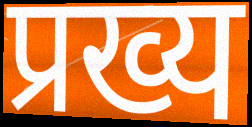
प्रख्य